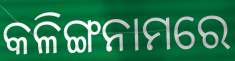
କଳିଙ୍ଗନାମରେ